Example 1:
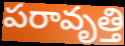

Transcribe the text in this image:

పరావృత్తి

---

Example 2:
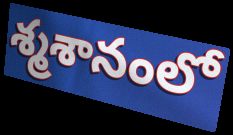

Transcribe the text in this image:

శ్మశానంలో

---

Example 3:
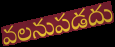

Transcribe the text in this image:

వలనుపడదు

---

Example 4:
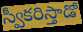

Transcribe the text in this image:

స్వీకరిస్తాడో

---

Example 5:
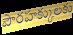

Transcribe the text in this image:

పౌరహక్కులకు